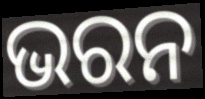
ଭରନ